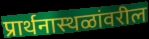
प्रार्थनास्थळांवरील